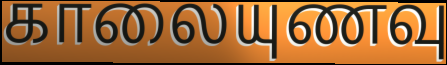
காலையுணவு